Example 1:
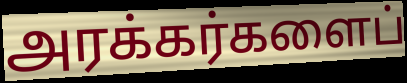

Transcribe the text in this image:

அரக்கர்களைப்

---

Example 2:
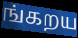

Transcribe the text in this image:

ங்கறய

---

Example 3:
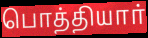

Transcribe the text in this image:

பொத்தியார்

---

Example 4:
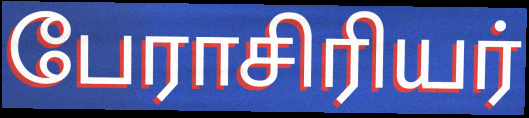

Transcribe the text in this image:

பேராசிரியர்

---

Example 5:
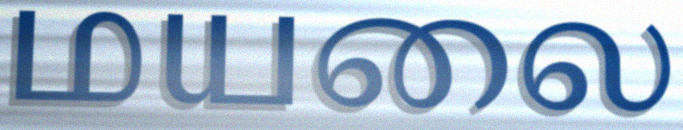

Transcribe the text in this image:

மயலை